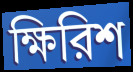
ক্ষিরিশ